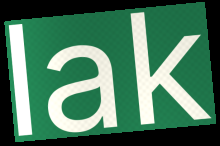
lak